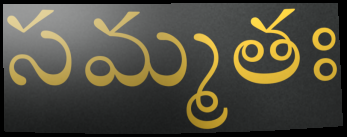
సమ్మతః